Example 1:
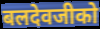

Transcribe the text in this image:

बलदेवजीको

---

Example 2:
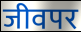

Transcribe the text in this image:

जीवपर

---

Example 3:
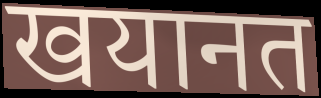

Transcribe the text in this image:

खयानत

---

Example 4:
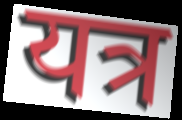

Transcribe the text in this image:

यत्र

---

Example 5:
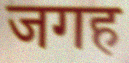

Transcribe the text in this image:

जगह